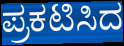
ಪ್ರಕಟಿಸಿದ